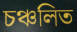
চঞ্চলিত